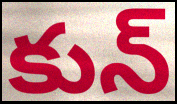
కున్